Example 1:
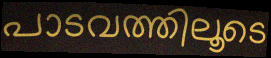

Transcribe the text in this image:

പാടവത്തിലൂടെ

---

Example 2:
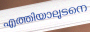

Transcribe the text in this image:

എത്തിയാലുടനെ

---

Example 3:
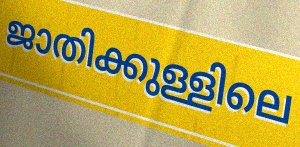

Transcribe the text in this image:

ജാതിക്കുള്ളിലെ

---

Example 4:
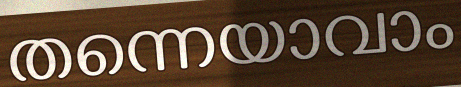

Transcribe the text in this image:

തന്നെയാവാം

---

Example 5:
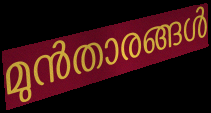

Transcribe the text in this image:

മുൻതാരങ്ങൾ